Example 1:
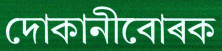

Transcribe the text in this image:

দোকানীবোৰক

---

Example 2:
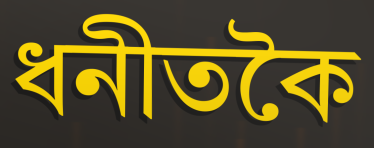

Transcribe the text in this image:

ধনীতকৈ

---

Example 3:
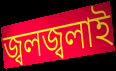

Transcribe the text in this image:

জ্বলজ্বলাই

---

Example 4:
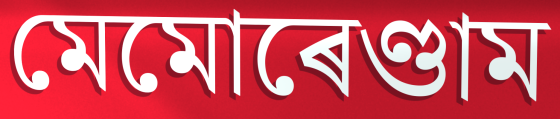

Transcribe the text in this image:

মেমোৰেণ্ডাম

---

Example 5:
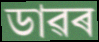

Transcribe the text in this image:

ডাৱৰ